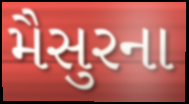
મૈસુરના